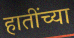
हातींच्या